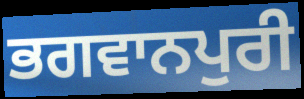
ਭਗਵਾਨਪੁਰੀ